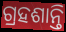
ଗ୍ରହଶାନ୍ତି